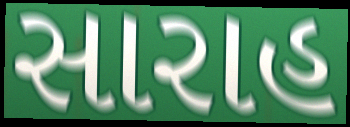
સારાહ